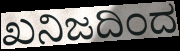
ಖನಿಜದಿಂದ